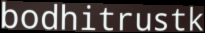
bodhitrustk